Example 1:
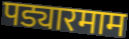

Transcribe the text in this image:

पड्यारमाम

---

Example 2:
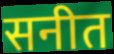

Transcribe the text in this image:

सनीत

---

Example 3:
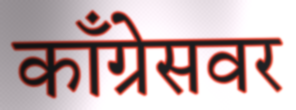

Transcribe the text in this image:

काँग्रेसवर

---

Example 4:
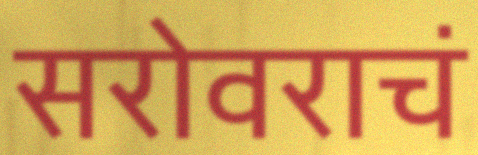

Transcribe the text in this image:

सरोवराचं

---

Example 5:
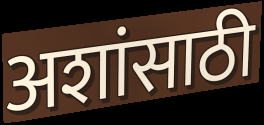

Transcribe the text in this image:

अशांसाठी